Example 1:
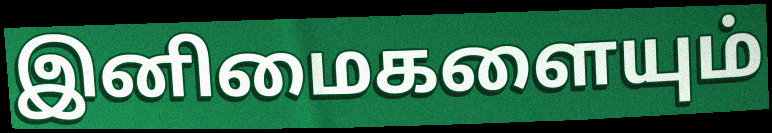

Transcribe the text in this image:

இனிமைகளையும்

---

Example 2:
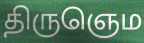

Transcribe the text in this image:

திருஞெம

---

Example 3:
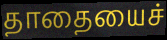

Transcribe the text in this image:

தாதையைச்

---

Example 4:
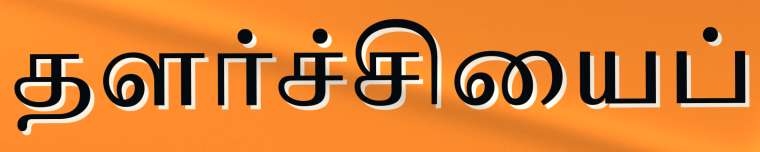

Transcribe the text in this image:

தளர்ச்சியைப்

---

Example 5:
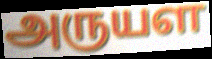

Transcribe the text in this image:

அருயள